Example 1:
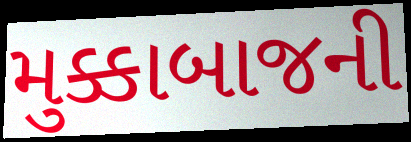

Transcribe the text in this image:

મુક્કાબાજની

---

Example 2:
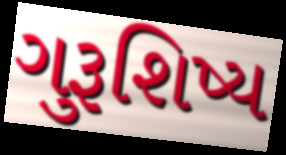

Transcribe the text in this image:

ગુરૂશિષ્ય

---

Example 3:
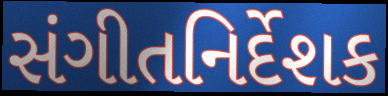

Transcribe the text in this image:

સંગીતનિર્દેશક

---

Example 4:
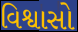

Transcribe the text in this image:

વિશ્વાસો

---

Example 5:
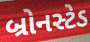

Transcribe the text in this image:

બ્રોનસ્ટેડ